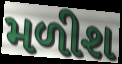
મળીશ